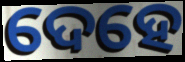
ଦେହେ